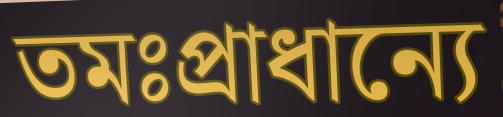
তমঃপ্রাধান্যে